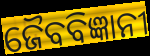
ଜୈବବିଜ୍ଞାନୀ